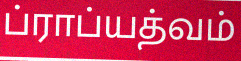
ப்ராப்யத்வம்